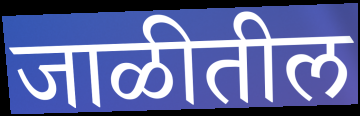
जाळीतील